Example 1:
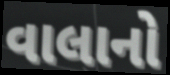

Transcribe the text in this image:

વાલાનો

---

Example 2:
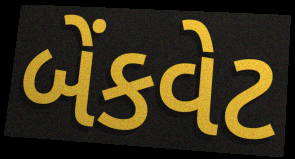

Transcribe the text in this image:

બેંકવેટ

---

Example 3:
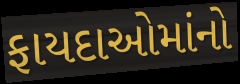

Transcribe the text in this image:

ફાયદાઓમાંનો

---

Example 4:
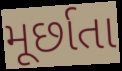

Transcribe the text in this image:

મૂર્છાતા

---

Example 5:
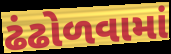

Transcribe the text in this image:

ઢંઢોળવામાં